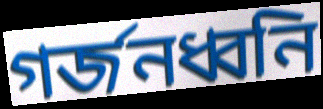
গর্জনধ্বনি